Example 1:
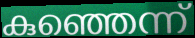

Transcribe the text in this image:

കുഞ്ഞെന്ന്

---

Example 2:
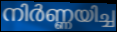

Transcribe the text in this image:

നിർണ്ണയിച്ച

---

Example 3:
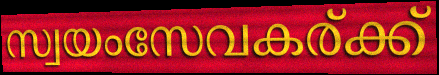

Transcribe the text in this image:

സ്വയംസേവകര്ക്ക്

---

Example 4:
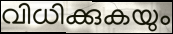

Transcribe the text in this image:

വിധിക്കുകയും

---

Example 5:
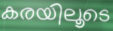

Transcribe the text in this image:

കരയിലൂടെ